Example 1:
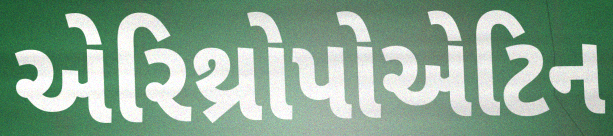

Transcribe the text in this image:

એરિથ્રોપોએટિન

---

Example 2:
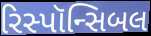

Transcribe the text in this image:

રિસ્પૉન્સિબલ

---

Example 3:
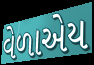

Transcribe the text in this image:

વેળાએય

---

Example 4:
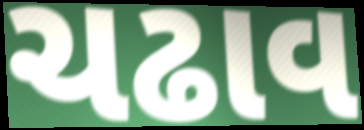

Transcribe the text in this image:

ચઢાવ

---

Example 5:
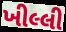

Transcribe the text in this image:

ખીલ્લી